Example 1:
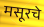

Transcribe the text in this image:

मसूरचे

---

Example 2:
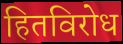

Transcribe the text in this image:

हितविरोध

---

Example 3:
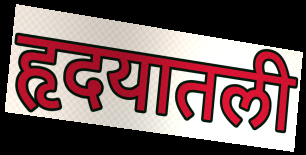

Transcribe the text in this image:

हृदयातली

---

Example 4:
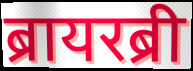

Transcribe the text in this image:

ब्रायरब्री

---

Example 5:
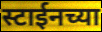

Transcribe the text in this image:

स्टाईनच्या